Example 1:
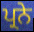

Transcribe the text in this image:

ਪ੍ਰਨੇ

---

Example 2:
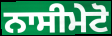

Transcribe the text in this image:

ਨਾਸੀਮੇਟੋ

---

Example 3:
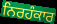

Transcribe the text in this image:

ਨਿਰਹੰਕਾਰ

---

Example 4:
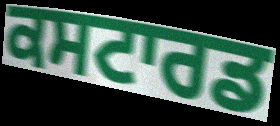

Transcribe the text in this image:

ਕਸਟਾਰਡ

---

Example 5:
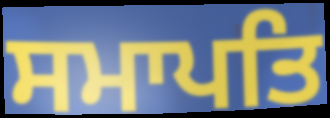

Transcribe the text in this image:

ਸਮਾਪਤਿ